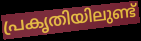
പ്രകൃതിയിലുണ്ട്